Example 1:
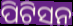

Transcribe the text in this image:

ପିଟିସନ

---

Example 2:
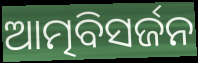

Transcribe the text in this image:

ଆତ୍ମବିସର୍ଜନ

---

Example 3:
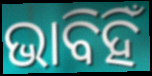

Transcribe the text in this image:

ଭାବିହିଁ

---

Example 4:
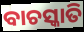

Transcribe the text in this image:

ବାଚସ୍କାତି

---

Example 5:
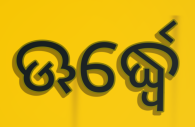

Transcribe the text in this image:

ଊର୍ଦ୍ଧ୍ୱେ